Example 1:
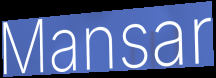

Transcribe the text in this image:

Mansar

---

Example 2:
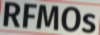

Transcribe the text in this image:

RFMOs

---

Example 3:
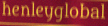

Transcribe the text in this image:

henleyglobal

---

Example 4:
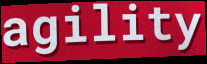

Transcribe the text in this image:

agility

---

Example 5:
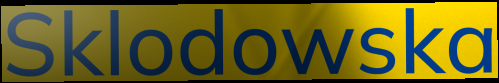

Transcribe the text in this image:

Sklodowska